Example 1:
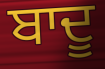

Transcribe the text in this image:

ਬਾਦੂ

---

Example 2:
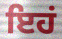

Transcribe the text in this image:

ਇਹਂ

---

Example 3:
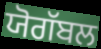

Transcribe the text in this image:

ਯੋਗੱਬਲ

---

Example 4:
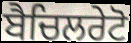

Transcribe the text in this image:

ਬੈਚਿਲਰੇਟੋ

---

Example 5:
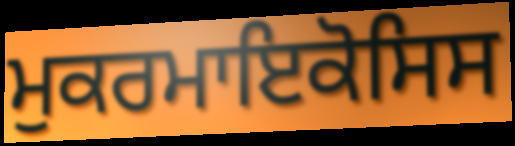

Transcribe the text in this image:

ਮੁਕਰਮਾਇਕੋਸਿਸ